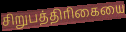
சிறுபத்திரிகையை